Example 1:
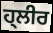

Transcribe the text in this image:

ਹ੍ਲੀਰ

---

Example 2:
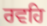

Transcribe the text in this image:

ਰਵਹਿ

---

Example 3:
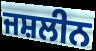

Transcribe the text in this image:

ਜਸ਼ਲੀਨ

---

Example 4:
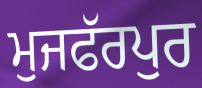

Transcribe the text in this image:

ਮੁਜਫੱਰਪੁਰ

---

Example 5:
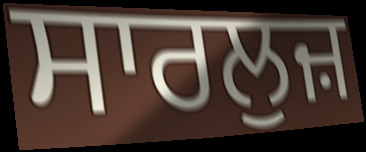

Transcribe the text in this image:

ਸਾਰਲੁਜ਼